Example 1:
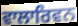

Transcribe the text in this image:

ਵਾਲਾਰਿਵਨ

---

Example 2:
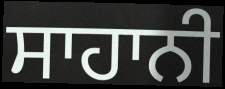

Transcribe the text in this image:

ਸਾਹਾਨੀ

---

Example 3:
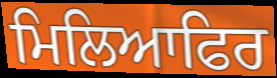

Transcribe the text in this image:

ਮਿਲਿਆਫਿਰ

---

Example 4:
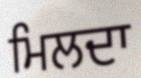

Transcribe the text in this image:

ਮਿਲਦਾ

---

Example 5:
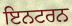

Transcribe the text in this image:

ਇਨਟਰਨ